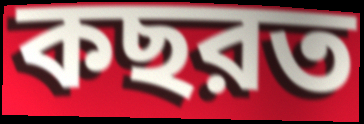
কছরত